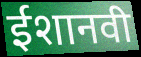
ईशानवी